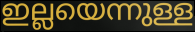
ഇല്ലയെന്നുള്ള